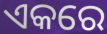
ଏକରେ